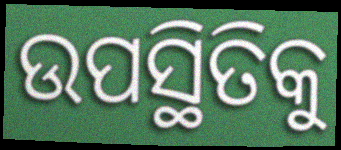
ଉପସ୍ଥିତିକୁ